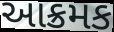
આક્રમક